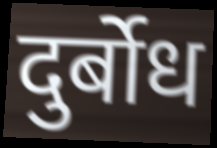
दुर्बोध